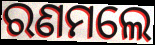
ରଣମଲେ